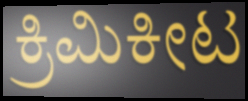
ಕ್ರಿಮಿಕೀಟ